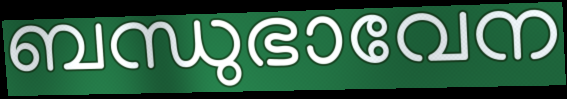
ബന്ധുഭാവേന